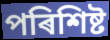
পৰিশিষ্ট